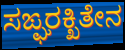
ಸಙ್ಘರಕ್ಖಿತೇನ